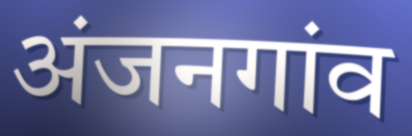
अंजनगांव